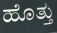
ಹೊತ್ತು